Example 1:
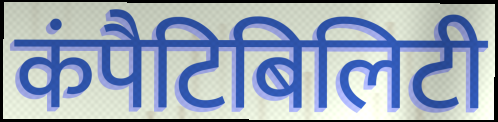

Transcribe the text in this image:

कंपैटिबिलिटी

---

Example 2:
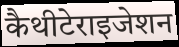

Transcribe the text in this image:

कैथीटेराइजेशन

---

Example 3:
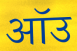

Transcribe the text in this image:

ऑउ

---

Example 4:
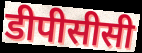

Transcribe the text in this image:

डीपीसीसी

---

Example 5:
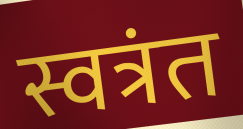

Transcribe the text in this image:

स्वत्रंत